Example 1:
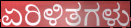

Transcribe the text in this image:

ಏರಿಳಿತಗಳು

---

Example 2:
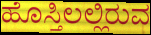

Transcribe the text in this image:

ಹೊಸ್ತಿಲಲ್ಲಿರುವ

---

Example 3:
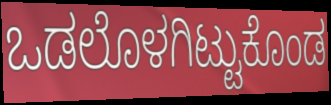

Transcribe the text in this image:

ಒಡಲೊಳಗಿಟ್ಟುಕೊಂಡ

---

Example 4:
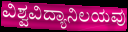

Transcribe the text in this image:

ವಿಶ್ವವಿದ್ಯಾನಿಲಯವು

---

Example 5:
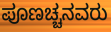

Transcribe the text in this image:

ಪೂಣಚ್ಚನವರು